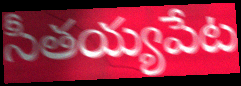
సీతయ్యపేట